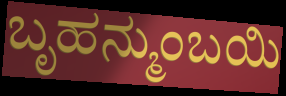
ಬೃಹನ್ಮುಂಬಯಿ